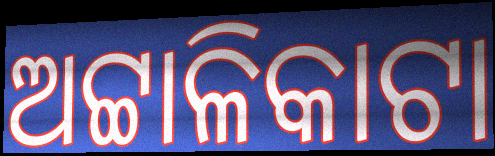
ଅଟ୍ଟାଳିକାଟା